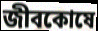
জীবকোষে